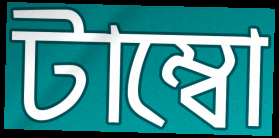
টাম্বো